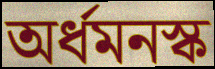
অর্ধমনস্ক